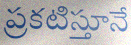
ప్రకటిస్తూనే